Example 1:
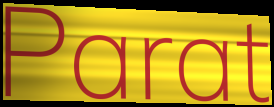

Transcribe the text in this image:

Parat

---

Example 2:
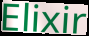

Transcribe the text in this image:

Elixir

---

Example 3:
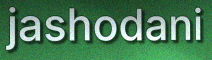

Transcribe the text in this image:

jashodani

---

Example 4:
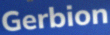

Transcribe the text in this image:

Gerbion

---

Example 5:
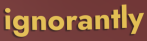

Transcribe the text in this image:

ignorantly